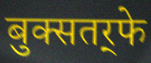
बुक्सतर्फे